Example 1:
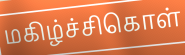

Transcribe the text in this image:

மகிழ்ச்சிகொள்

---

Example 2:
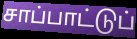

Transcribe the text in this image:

சாப்பாட்டுப்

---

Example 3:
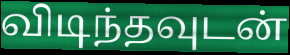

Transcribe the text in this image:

விடிந்தவுடன்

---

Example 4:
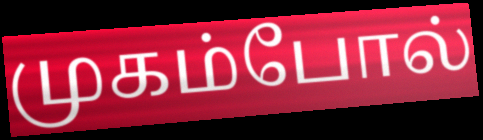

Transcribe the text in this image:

முகம்போல்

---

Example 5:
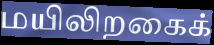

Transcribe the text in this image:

மயிலிறகைக்